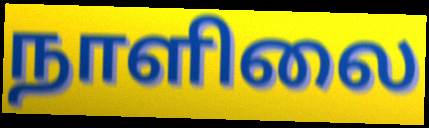
நாளிலை